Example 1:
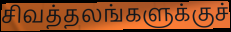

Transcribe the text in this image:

சிவத்தலங்களுக்குச்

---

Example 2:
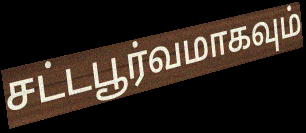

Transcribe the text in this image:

சட்டபூர்வமாகவும்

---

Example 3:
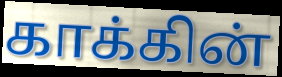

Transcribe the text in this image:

காக்கின்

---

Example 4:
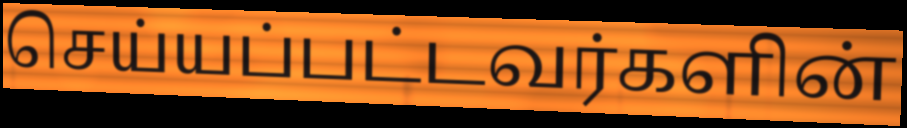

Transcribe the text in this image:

செய்யப்பட்டவர்களின்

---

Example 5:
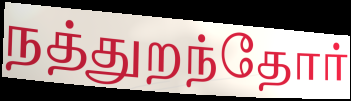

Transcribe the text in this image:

நத்துறந்தோர்